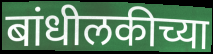
बांधीलकीच्या